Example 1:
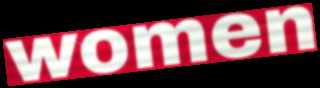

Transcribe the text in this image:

women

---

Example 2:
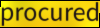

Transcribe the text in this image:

procured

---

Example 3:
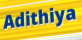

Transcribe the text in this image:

Adithiya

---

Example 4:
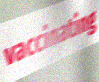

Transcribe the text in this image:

vaccinating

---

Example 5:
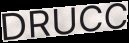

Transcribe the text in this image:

DRUCC